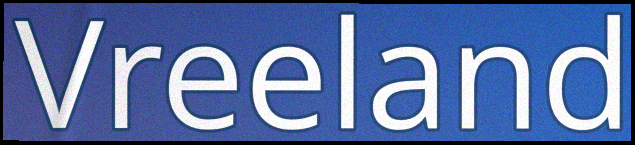
Vreeland